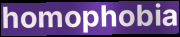
homophobia